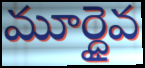
మూర్ధైవ